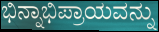
ಭಿನ್ನಾಭಿಪ್ರಾಯವನ್ನು